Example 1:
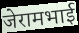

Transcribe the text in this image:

जेरामभाई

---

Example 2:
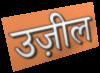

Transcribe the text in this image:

उज़ील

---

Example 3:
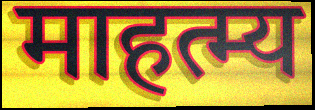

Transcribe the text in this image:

माहत्म्य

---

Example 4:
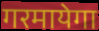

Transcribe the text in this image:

गरमायेगा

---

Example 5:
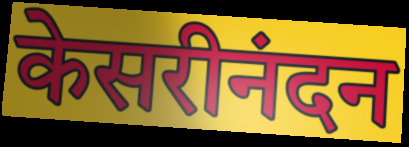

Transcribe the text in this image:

केसरीनंदन